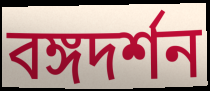
বঙ্গদর্শন